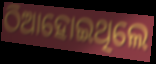
ଠିଆହୋଇଥିଲେ